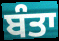
ਬੰਤਾ